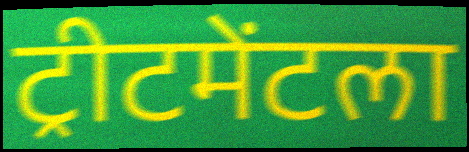
ट्रीटमेंटला